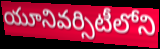
యూనివర్సిటీలోని